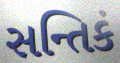
સન્તિકં